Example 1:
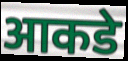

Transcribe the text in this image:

आकडे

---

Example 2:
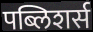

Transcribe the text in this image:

पब्लिशर्स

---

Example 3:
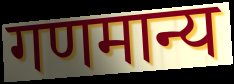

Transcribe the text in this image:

गणमान्य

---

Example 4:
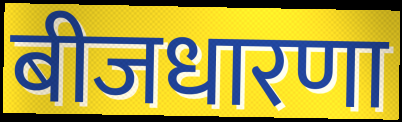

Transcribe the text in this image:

बीजधारणा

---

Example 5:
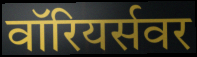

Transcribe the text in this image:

वॉरियर्सवर